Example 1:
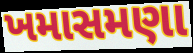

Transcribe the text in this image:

ખમાસમણા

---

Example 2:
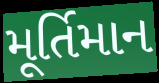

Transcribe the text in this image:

મૂર્તિમાન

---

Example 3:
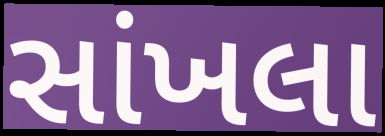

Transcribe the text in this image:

સાંખલા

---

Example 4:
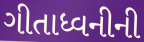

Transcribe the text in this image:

ગીતાધ્વનીની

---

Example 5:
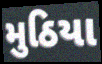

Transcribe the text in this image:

મુઠિયા